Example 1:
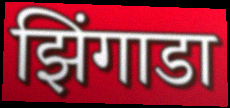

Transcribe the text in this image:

झिंगाडा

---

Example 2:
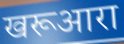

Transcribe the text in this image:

खरूआरा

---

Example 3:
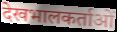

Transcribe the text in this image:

देखभालकर्ताओं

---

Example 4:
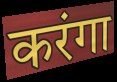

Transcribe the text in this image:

करंगा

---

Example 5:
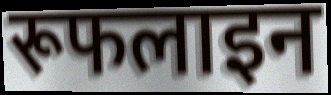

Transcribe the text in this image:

रूफलाइन